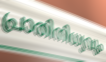
പ്രാതിനിധ്യവും